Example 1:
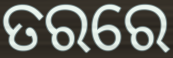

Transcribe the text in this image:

ତରରେ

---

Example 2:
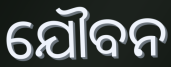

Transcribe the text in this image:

ଯୌବନ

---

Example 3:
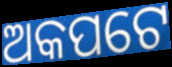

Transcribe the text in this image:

ଅକପଟେ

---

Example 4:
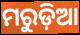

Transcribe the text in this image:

ମରୁଡ଼ିଆ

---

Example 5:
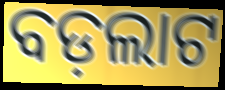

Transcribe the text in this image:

ବଡ଼ଲାଟ